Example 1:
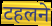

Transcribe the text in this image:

टहलने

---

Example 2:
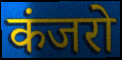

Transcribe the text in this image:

कंजरो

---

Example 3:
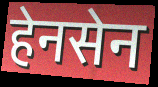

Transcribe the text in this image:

हेनसेन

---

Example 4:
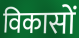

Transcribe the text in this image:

विकासों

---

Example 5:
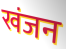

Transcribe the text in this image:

खंजन